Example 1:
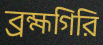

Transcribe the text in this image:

ব্রহ্মগিরি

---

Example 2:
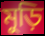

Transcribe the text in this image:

মুড়ি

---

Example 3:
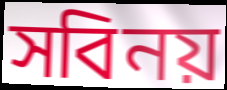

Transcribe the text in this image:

সবিনয়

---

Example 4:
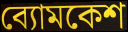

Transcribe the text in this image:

ব্যোমকেশ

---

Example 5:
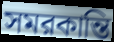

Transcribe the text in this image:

সমরকান্তি